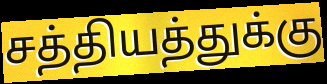
சத்தியத்துக்கு